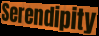
Serendipity